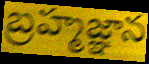
బ్రహ్మజ్ఞాన